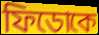
ফিডোকে